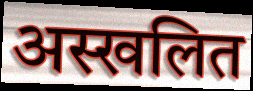
अस्खलित